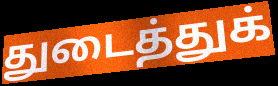
துடைத்துக்